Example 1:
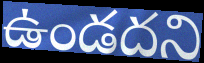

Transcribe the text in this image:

ఉండదని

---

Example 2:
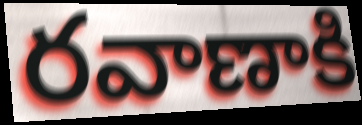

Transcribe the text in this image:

రవాణాకి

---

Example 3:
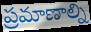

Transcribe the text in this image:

ప్రమాణాల్ని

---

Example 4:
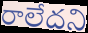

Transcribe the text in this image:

రాలేదని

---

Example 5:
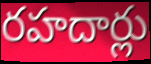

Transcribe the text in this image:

రహదార్లు